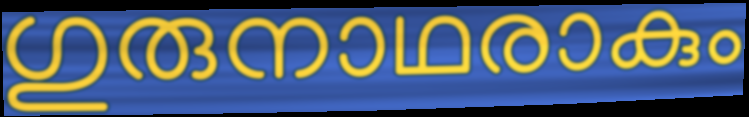
ഗുരുനാഥരാകും